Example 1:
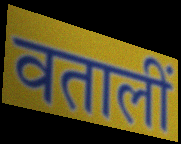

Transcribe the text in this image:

वतालीं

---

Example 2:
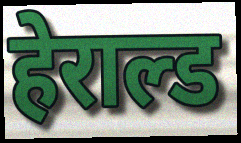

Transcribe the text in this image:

हेराल्ड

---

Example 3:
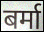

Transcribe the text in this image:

बर्मा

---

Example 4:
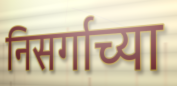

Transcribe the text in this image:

निसर्गाच्या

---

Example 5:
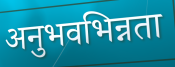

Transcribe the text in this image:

अनुभवभिन्नता